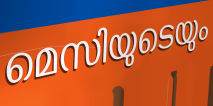
മെസിയുടെയും